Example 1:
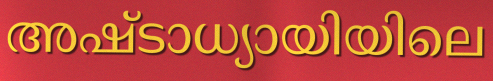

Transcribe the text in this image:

അഷ്ടാധ്യായിയിലെ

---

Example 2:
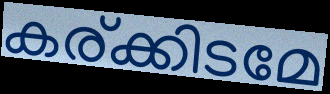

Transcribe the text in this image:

കര്ക്കിടമേ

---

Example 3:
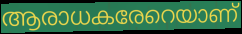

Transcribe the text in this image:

ആരാധകരേറെയാണ്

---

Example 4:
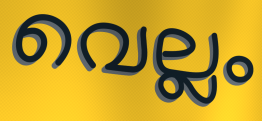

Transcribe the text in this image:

വെല്ലം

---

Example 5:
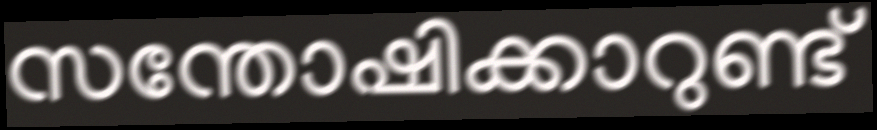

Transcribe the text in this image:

സന്തോഷിക്കാറുണ്ട്